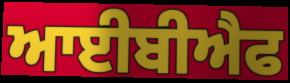
ਆਈਬੀਐਫ